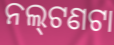
ନଲ୍‍ଟଣଟା